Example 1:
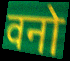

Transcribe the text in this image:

वनो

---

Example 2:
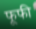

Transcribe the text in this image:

फूफी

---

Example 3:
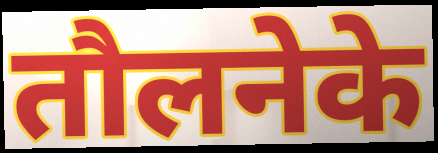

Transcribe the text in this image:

तौलनेके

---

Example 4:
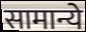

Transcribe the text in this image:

सामान्ये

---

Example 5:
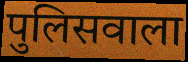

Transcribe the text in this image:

पुलिसवाला